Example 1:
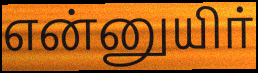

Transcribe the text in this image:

என்னுயிர்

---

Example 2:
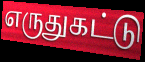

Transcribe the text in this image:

எருதுகட்டு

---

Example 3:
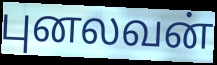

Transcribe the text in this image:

புனலவன்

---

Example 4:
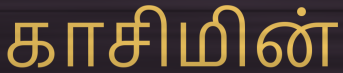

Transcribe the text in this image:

காசிமின்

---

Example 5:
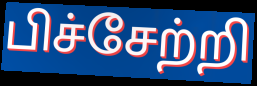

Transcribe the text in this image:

பிச்சேற்றி